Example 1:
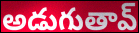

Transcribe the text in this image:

అడుగుతావ్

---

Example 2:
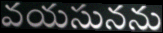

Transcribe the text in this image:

వయసునను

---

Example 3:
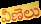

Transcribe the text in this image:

వీణెలు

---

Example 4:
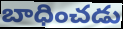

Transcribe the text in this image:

బాధించడు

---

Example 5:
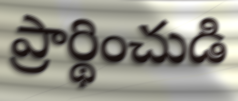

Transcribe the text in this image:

ప్రార్థించుడి